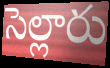
సెల్లారు